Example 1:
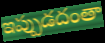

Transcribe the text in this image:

ఇప్పుడదంతా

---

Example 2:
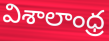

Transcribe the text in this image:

విశాలాంధ్ర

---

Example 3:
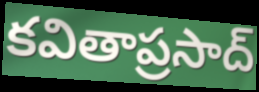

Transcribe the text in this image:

కవితాప్రసాద్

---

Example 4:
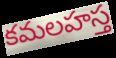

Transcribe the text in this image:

కమలహస్త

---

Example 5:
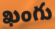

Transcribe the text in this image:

ఖంగు